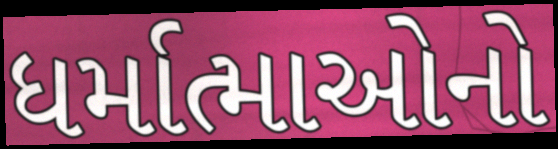
ધર્માત્માઓનો